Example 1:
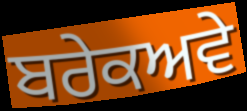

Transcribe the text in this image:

ਬਰੇਕਅਵੇ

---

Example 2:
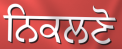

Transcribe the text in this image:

ਨਿਕਲਣੋ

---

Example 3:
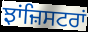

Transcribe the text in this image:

ਝਾਂਜ਼ਿਸਟਰਾਂ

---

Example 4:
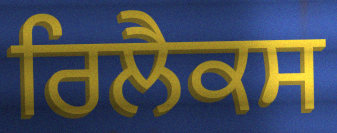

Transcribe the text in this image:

ਰਿਲੈਕਸ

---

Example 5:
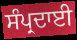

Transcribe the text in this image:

ਸੰਪ੍ਰਦਾਈ